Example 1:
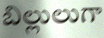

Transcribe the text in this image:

బిల్లులుగా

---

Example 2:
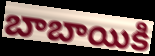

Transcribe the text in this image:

బాబాయికి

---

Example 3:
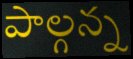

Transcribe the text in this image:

పాల్గన్న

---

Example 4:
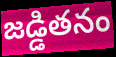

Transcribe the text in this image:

జడ్డితనం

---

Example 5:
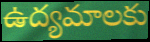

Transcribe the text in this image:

ఉద్యమాలకు